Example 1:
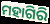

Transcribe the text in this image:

ମହାଗିରି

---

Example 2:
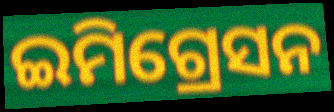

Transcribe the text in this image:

ଇମିଗ୍ରେସନ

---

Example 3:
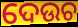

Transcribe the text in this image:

ଦେଉଚ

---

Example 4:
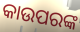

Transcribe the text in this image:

କାଉପରଙ୍କ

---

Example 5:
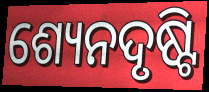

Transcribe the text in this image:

ଶ୍ୟେନଦୃଷ୍ଟି